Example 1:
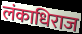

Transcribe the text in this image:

लंकाधिराज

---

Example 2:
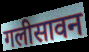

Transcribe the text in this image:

गलीसावन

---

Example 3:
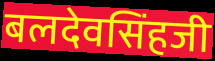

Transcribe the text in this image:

बलदेवसिंहजी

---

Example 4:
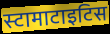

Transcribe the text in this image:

स्टामाटाइटिस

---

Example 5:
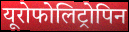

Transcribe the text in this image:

यूरोफोलिट्रोपिन